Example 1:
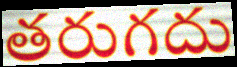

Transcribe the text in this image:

తరుగదు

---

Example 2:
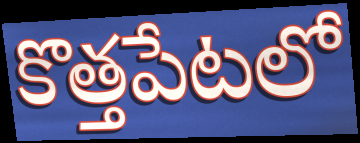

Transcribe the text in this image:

కొత్తపేటలో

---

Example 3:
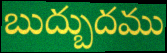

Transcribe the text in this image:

బుద్బుదము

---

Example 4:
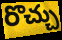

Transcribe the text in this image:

రొచ్చు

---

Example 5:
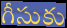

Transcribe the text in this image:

గీసుకు